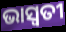
ଭାସ୍ଵତୀ